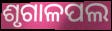
ଶୃଗାଳପଲ